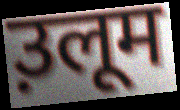
उ़लूम